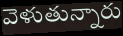
వెళుతున్నారు